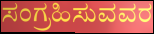
ಸಂಗ್ರಹಿಸುವವರ